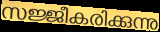
സജ്ജീകരിക്കുന്നു